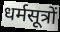
धर्मसूत्रों